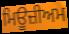
ਮਿਊਜ਼ੀਅਮ